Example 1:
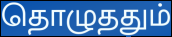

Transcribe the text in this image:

தொழுததும்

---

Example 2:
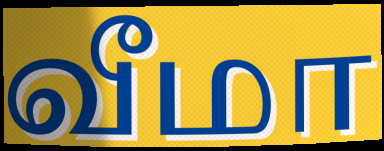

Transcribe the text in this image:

வீமா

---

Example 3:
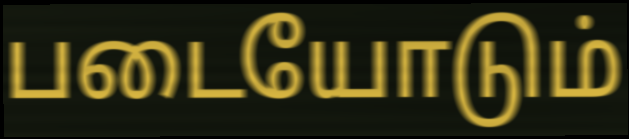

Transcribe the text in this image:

படையோடும்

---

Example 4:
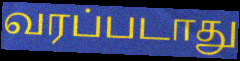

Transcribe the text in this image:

வரப்படாது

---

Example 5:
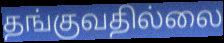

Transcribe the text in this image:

தங்குவதில்லை